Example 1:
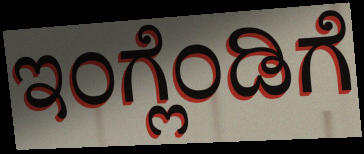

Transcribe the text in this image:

ಇಂಗ್ಲೆಂಡಿಗೆ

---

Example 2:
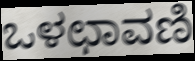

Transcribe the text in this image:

ಒಳಛಾವಣಿ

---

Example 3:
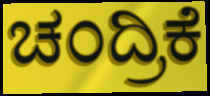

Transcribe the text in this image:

ಚಂದ್ರಿಕೆ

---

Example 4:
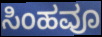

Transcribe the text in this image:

ಸಿಂಹವೂ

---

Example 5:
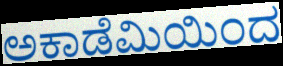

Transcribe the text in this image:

ಅಕಾಡೆಮಿಯಿಂದ